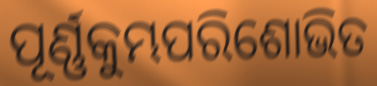
ପୂର୍ଣ୍ଣକୁମ୍ଭପରିଶୋଭିତ